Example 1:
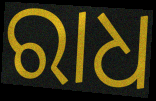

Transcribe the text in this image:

ରାଧ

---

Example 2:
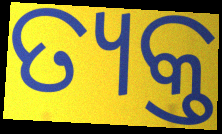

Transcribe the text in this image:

ତ୍ୟକ୍ତ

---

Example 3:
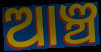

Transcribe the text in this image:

ଆଞ୍ଚ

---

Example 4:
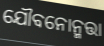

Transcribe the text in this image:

ଯୌବନୋନ୍ମତ୍ତା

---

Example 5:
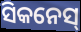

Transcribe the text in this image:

ସିକନେସ୍